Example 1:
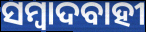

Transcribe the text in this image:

ସମ୍ବାଦବାହୀ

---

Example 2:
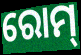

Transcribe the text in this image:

ରୋମ୍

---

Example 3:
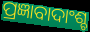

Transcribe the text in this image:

ପ୍ରଜ୍ଞାବାଦାଂଶ୍ଚ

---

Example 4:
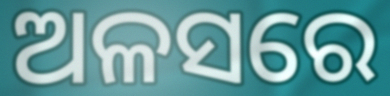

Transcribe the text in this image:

ଅଳସରେ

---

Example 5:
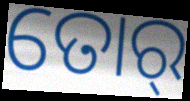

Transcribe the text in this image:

ତୋର୍